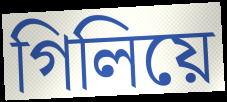
গিলিয়ে